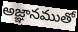
అజ్ఞానముతో